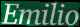
Emilio